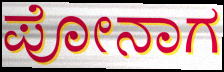
ಪೋನಾಗ